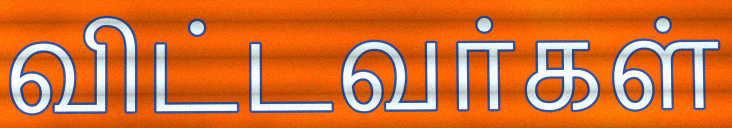
விட்டவர்கள்